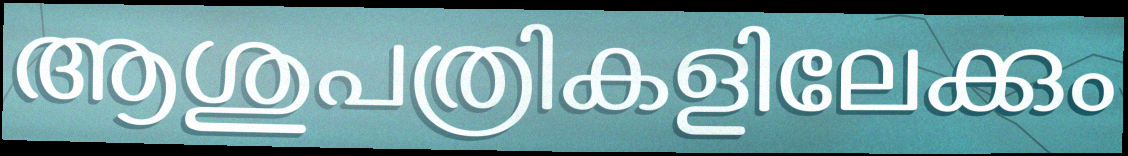
ആശുപത്രികളിലേക്കും